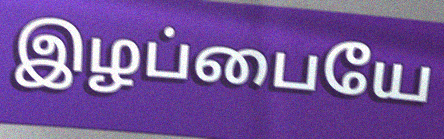
இழப்பையே